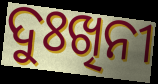
ଦୁଃଖିନୀ